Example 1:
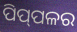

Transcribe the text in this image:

ପିପ୍‌ପଳର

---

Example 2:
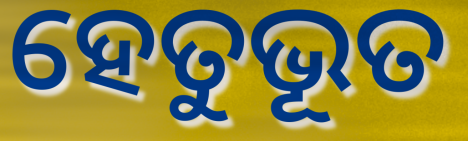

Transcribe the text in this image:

ହେତୁଭୂତ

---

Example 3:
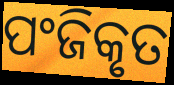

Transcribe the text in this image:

ପଂଜିକୃତ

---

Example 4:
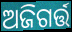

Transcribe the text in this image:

ଅଜିଗର୍ତ୍ତ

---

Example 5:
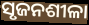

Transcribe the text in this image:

ସୃଜନଶୀଳା